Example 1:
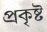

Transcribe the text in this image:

প্ৰকৃষ্ট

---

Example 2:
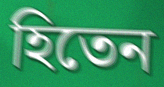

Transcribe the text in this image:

হিতেন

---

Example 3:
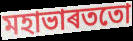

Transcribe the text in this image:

মহাভাৰততো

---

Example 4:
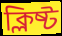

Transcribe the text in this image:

ক্লিষ্ট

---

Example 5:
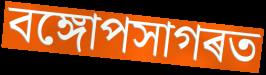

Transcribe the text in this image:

বঙ্গোপসাগৰত